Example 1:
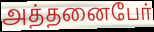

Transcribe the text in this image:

அத்தனைபேர்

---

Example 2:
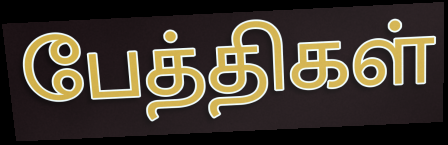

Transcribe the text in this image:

பேத்திகள்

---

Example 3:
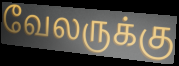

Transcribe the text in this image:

வேலருக்கு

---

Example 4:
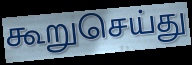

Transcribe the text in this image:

கூறுசெய்து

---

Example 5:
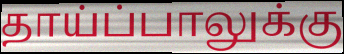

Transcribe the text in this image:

தாய்ப்பாலுக்கு